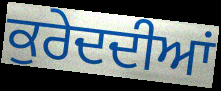
ਕੁਰੇਦਦੀਆਂ